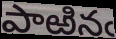
పాఱినఁ